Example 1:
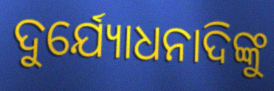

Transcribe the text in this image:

ଦୁର୍ଯ୍ୟୋଧନାଦିଙ୍କୁ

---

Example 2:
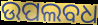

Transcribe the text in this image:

ଉପଲବଧ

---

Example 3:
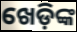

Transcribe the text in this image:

ଖେଡ଼ିଙ୍କ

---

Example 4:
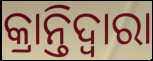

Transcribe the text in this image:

କ୍ରାନ୍ତିଦ୍ୱାରା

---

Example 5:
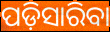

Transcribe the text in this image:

ପଡ଼ିସାରିବା